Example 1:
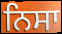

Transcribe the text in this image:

ਨਿਸਾ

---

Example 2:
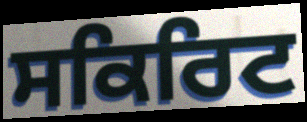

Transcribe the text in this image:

ਸਕਿਰਿਟ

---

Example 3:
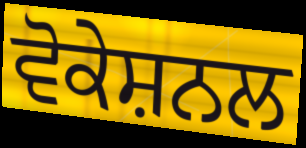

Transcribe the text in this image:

ਵੋਕੇਸ਼ਨਲ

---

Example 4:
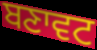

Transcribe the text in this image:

ਬਣਾਵਟ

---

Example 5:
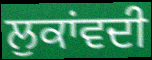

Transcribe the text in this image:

ਲੁਕਾਂਵਦੀ